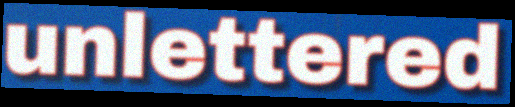
unlettered